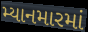
મ્યાનમારમાં